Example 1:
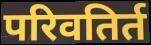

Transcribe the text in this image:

परिवतिर्त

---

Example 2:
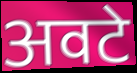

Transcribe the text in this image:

अवटे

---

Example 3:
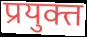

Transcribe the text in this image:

प्रयुक्त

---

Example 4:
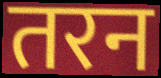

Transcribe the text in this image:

तरन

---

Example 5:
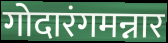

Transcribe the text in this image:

गोदारंगमन्नार